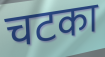
चटका